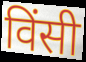
विंसी